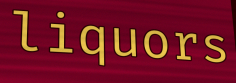
liquors